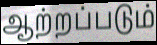
ஆற்றப்படும்